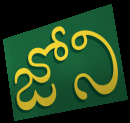
జోని